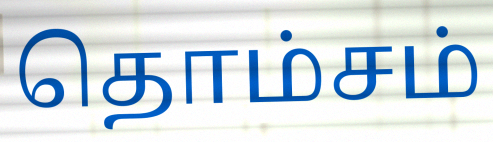
தொம்சம்